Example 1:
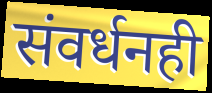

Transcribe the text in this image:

संवर्धनही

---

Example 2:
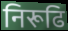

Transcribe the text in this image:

निरूढि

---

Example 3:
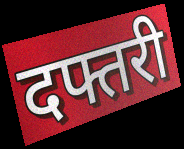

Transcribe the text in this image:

दफ्तरी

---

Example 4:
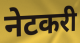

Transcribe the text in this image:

नेटकरी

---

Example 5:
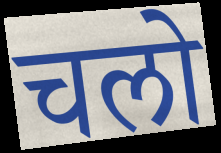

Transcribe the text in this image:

चलो